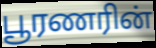
பூரணரின்